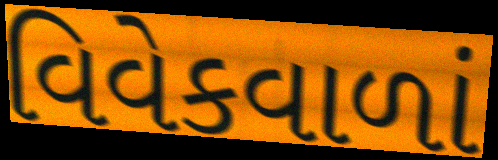
વિવેકવાળાં